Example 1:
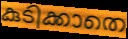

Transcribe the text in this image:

കുടിക്കാതെ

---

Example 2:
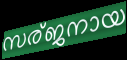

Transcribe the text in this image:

സര്ജനായ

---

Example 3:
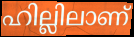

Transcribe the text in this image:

ഹില്ലിലാണ്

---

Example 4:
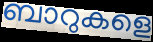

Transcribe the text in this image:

ബാറുകളെ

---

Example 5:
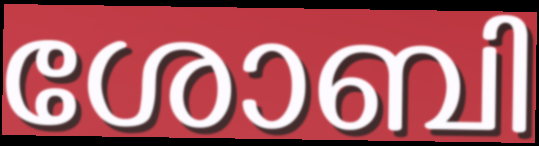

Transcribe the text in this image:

ശോബി